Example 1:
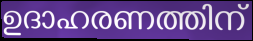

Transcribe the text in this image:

ഉദാഹരണത്തിന്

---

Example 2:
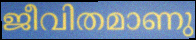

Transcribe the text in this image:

ജീവിതമാണു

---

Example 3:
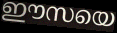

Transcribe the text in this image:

ഈസയെ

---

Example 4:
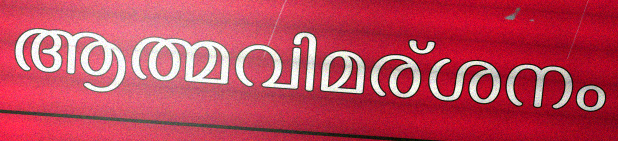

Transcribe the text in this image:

ആത്മവിമര്ശനം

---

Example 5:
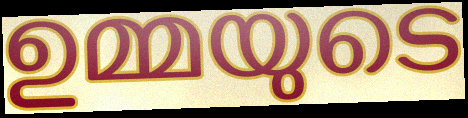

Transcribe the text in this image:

ഉമ്മയുടെ